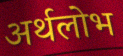
अर्थलोभ